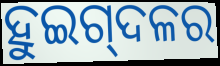
ହୁଇଗ୍‌ଦଳର